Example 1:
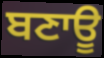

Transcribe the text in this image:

ਬਣਾਊ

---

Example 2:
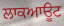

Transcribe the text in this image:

ਲਾਕਆਊਟ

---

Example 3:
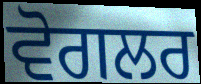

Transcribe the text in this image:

ਵੋਗਲਰ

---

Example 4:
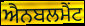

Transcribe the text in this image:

ਐਨਬਲਮੈਂਟ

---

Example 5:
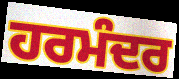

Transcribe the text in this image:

ਹਰਮੰਦਰ